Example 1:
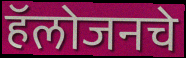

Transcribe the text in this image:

हॅलोजनचे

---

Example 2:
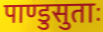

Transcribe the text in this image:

पाण्डुसुताः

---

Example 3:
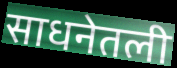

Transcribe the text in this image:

साधनेतली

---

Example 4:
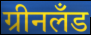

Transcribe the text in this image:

ग्रीनलँड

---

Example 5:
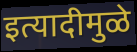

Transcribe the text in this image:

इत्यादीमुळे